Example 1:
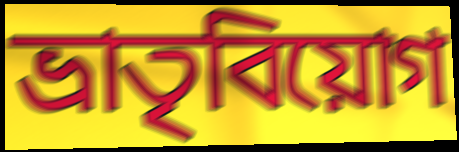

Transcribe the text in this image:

ভ্রাতৃবিয়োগ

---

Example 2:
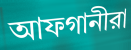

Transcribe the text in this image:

আফগানীরা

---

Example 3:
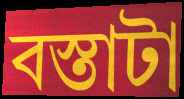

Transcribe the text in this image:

বস্তাটা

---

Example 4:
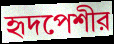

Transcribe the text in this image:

হৃদপেশীর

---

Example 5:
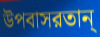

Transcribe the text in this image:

উপবাসরতান্